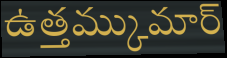
ఉత్తమ్కుమార్